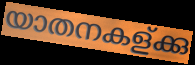
യാതനകള്ക്കു